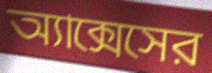
অ্যাক্সেসের